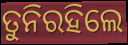
ତୁନିରହିଲେ